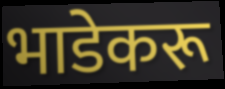
भाडेकरू